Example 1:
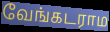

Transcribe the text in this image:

வேங்கடராம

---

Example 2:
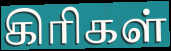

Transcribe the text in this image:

கிரிகள்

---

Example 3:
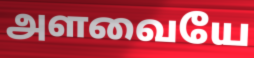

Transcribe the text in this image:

அளவையே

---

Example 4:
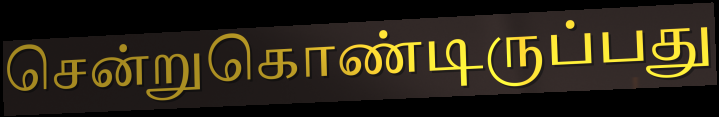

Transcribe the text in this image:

சென்றுகொண்டிருப்பது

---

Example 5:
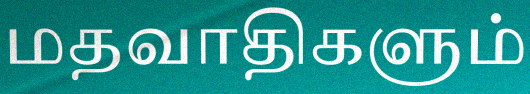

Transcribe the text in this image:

மதவாதிகளும்